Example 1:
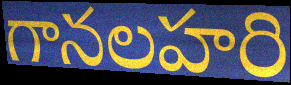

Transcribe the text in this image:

గానలహరి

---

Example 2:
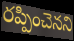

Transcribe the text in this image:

రప్పించెనని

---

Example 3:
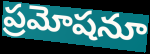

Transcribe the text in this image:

ప్రమోషనూ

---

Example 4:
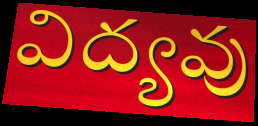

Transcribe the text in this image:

విద్యవు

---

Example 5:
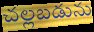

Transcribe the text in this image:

చల్లబడును